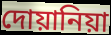
দোয়ানিয়া